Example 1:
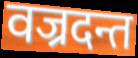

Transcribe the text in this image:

वज्रदन्त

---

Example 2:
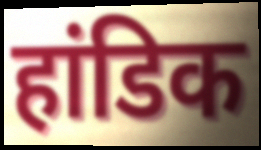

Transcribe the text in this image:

हांडिक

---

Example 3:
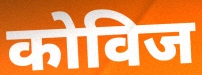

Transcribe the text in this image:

कोविज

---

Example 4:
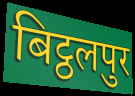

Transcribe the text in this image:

बिट्ठलपुर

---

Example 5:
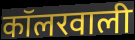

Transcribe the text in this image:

कॉलरवाली